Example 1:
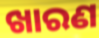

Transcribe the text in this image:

ଖାରଣ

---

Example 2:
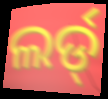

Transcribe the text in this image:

ଲର୍ଡ୍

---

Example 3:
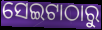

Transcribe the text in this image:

ସେଇଟାଠାରୁ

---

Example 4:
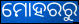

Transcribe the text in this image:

ମୋହରରୁ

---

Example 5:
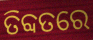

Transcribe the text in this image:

ତିବ୍ଦତରେ